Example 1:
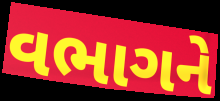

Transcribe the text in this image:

વભાગને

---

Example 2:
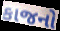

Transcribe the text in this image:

કાજનો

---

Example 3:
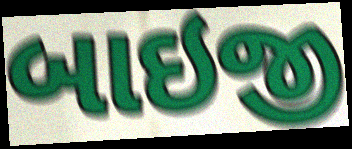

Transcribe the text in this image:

બાઇજી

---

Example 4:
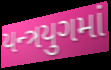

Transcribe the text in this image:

યન્ત્રયુગમાં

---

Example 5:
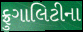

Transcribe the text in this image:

ફ્રુગાલિટીના